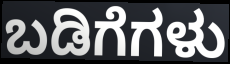
ಬಡಿಗೆಗಳು